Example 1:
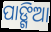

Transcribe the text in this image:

ପାଙ୍ଗିଆ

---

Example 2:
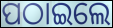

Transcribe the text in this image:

ପଠାଇଲେ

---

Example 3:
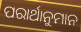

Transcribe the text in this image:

ପରାର୍ଥାନୁମାନ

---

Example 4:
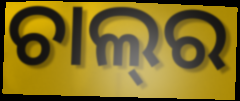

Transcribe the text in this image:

ଚାଲ୍‌ର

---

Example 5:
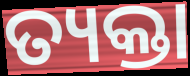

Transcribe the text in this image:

ତ୍ୟକ୍ତା